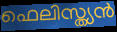
ഫെലിസ്ത്യൻ